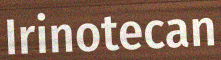
Irinotecan